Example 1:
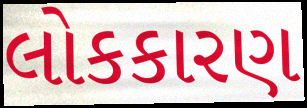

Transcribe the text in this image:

લોકકારણ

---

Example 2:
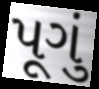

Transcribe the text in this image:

પૂગું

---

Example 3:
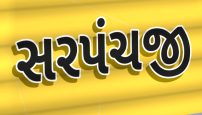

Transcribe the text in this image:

સરપંચજી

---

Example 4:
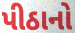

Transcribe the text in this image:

પીઠાનો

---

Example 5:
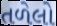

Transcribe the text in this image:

તળેલો